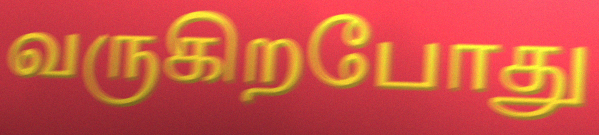
வருகிறபோது